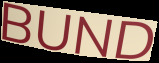
BUND